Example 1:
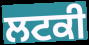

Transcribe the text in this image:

ਲਟਕੀ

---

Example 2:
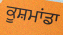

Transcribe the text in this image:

ਕੂਸ਼ਮਾਂਡਾ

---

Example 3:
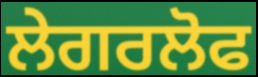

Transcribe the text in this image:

ਲੇਗਰਲੋਫ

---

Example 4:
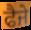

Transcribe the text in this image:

ਫੈਜੇ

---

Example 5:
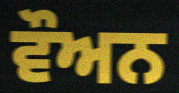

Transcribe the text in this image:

ਵੌਅਨ